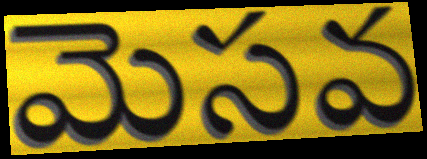
మెసవ